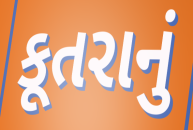
કૂતરાનું